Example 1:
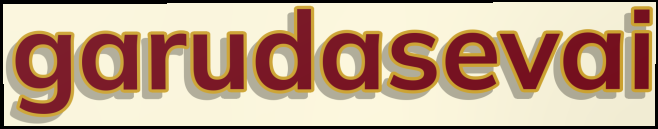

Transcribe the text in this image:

garudasevai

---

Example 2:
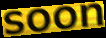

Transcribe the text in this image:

soon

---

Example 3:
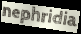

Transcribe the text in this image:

nephridia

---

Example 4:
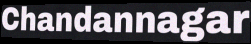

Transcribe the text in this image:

Chandannagar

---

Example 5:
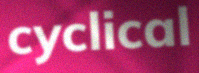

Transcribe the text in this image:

cyclical